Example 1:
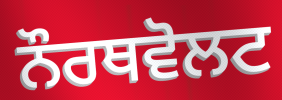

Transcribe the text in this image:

ਨੌਰਥਵੋਲਟ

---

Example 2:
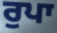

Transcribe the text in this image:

ਰੁਪਾ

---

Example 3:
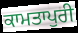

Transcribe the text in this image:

ਕਾਮਤਾਪੁਰੀ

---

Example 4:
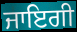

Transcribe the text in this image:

ਜਾਇਗੀ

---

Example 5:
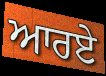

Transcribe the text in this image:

ਆਰਏ